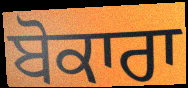
ਬੋਕਾਰਾ